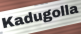
Kadugolla